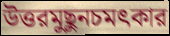
উত্তরমুছুনচমৎকার